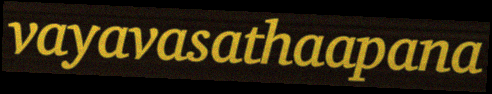
vayavasathaapana